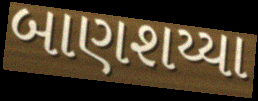
બાણશય્યા